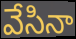
వేసినా